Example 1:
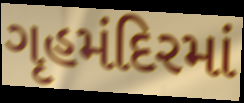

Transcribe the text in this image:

ગૃહમંદિરમાં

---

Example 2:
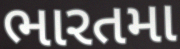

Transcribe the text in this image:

ભારતમા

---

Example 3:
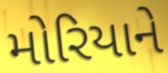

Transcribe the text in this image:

મોરિયાને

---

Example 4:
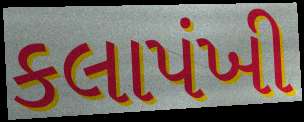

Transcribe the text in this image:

કલાપંખી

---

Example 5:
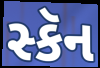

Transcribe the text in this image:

સ્કૅન